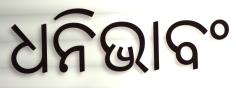
ଧନିଭାବଂ